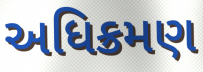
અધિક્રમણ